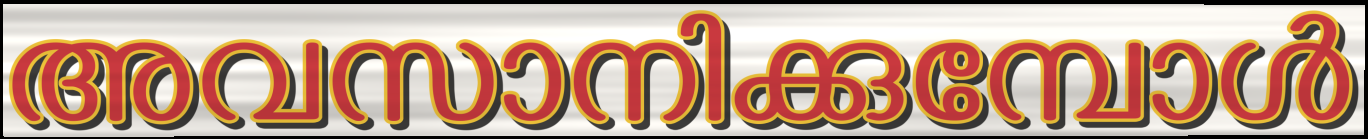
അവസാനിക്കുമ്പോൾ